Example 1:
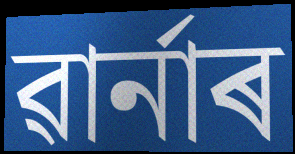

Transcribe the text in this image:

ৱাৰ্নাৰ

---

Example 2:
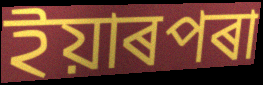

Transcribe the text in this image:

ইয়াৰপৰা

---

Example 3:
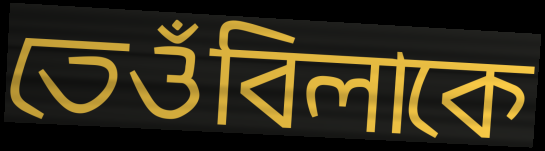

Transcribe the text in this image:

তেওঁবিলাকে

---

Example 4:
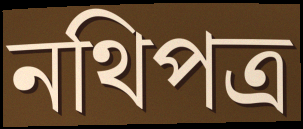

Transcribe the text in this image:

নথিপত্ৰ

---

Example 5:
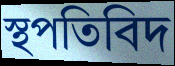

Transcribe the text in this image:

স্থপতিবিদ